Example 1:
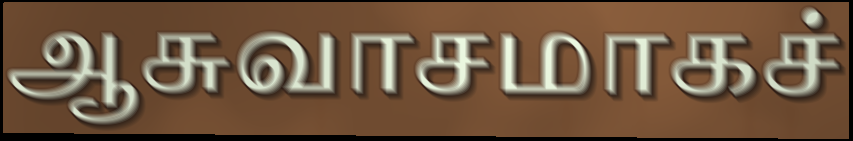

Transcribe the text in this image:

ஆசுவாசமாகச்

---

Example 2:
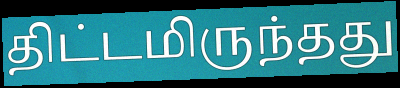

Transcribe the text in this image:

திட்டமிருந்தது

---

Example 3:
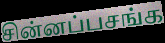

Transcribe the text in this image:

சின்னப்பசங்க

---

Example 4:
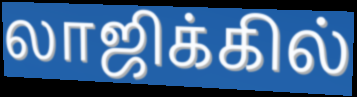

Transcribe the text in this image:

லாஜிக்கில்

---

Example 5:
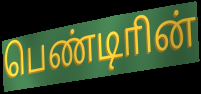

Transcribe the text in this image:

பெண்டிரின்